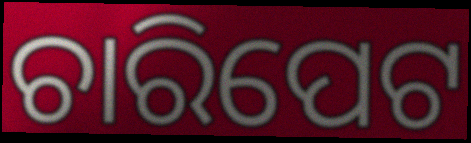
ଚାରିପେଟ